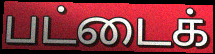
பட்டைக்